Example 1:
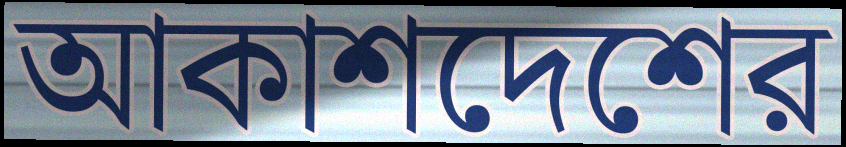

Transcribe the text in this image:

আকাশদেশের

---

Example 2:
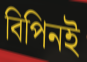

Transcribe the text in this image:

বিপিনই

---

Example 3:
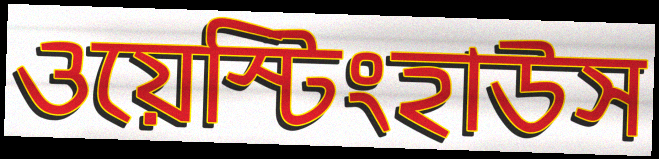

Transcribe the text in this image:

ওয়েস্টিংহাউস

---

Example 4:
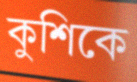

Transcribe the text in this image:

কুশিকে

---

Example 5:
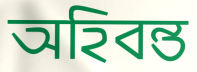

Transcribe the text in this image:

অহিবন্ত